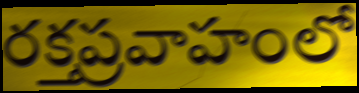
రక్తప్రవాహంలో